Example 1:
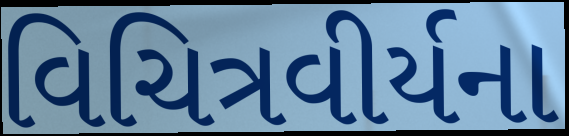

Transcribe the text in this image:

વિચિત્રવીર્યના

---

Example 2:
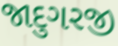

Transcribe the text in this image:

જાદુગરજી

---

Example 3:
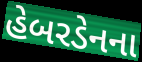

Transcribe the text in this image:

હેબરડેનના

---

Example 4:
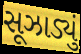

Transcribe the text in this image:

સૂઝાડ્યું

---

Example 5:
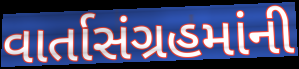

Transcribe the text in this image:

વાર્તાસંગ્રહમાંની